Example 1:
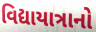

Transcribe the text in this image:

વિદ્યાયાત્રાનો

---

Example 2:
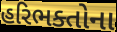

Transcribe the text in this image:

હરિભક્તોના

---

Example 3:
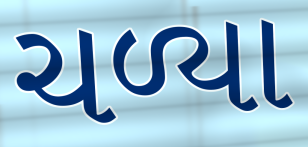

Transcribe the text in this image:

ચળ્યા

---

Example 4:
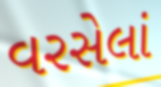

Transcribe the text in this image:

વરસેલાં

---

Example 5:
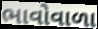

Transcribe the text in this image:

ભાવોવાળા